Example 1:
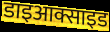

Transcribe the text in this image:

डाइआक्साइड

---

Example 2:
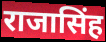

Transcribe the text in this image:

राजासिंह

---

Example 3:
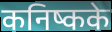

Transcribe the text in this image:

कनिष्कके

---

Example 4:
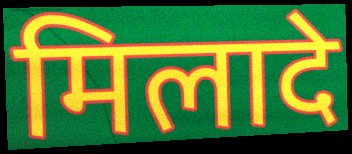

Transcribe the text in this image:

मिलादे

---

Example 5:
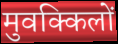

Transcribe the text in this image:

मुवक्किलों